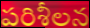
పరిశీలన